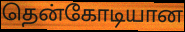
தென்கோடியான